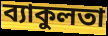
ব্যাকুলতা